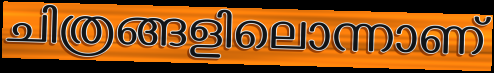
ചിത്രങ്ങളിലൊന്നാണ്